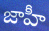
జాహీ